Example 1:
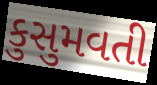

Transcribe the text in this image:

કુસુમવતી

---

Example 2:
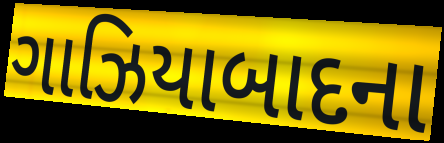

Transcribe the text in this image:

ગાઝિયાબાદના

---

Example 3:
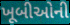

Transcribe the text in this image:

ખૂબીઓની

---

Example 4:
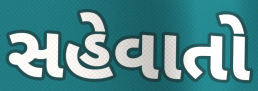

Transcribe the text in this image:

સહેવાતો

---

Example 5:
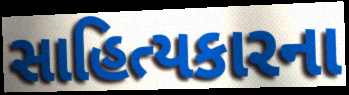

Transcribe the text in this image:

સાહિત્યકારના